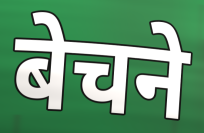
बेचने